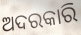
ଅଦରକାରି